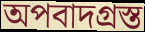
অপবাদগ্রস্ত